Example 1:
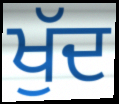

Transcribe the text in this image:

ਖੁੱਦ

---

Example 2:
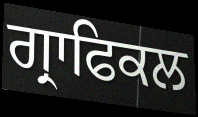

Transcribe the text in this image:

ਗ੍ਰਾਫਿਕਲ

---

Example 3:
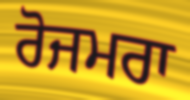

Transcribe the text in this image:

ਰੋਜਮਰਾ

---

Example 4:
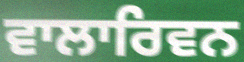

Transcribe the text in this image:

ਵਾਲਾਰਿਵਨ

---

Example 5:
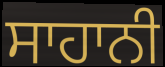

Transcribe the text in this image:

ਸਾਹਾਨੀ